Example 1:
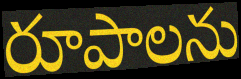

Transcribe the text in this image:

రూపాలను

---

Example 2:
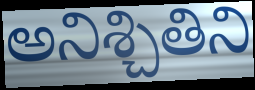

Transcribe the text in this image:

అనిశ్చితిని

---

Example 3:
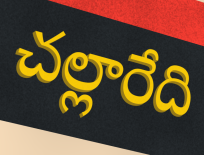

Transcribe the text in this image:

చల్లారేది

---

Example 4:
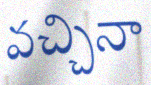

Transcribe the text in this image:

వచ్చినా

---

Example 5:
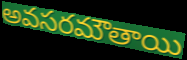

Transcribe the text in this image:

అవసరమౌతాయి